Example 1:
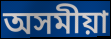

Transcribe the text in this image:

অসমীয়া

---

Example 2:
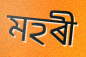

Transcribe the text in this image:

মহৰী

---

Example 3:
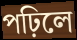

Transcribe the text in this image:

পঢ়িলে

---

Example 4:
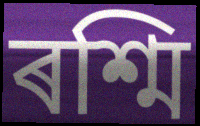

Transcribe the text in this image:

ৰশ্মি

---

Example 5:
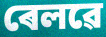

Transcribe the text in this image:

ৰেলৱে